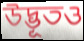
উদ্ভূতও